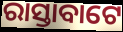
ରାସ୍ତାବାଟେ